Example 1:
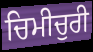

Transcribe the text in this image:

ਚਿਮੀਚੁਰੀ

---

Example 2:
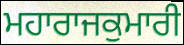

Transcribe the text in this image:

ਮਹਾਰਾਜਕੁਮਾਰੀ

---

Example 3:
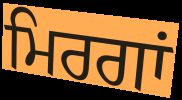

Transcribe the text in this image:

ਮਿਰਗਾਂ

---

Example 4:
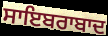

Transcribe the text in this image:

ਸਾਇਬਰਾਬਾਦ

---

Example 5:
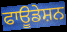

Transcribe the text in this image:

ਫਾਊਡੇਸ਼ਨ